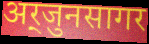
अर्जुनसागर